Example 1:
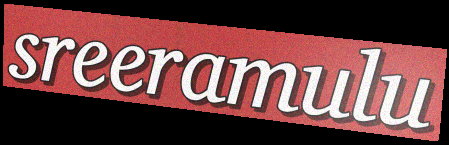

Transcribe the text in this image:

sreeramulu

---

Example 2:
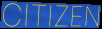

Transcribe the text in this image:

CITIZEN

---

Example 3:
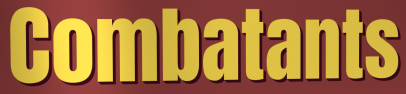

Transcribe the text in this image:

Combatants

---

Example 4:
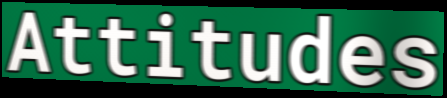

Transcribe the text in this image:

Attitudes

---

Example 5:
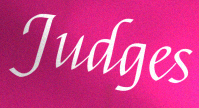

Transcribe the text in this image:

Judges